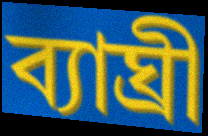
ব্যাঘ্ৰী